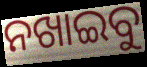
ନଖାଇବୁ